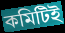
কমিটিই